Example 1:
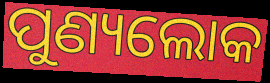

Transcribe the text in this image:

ପୁଣ୍ୟଲୋକ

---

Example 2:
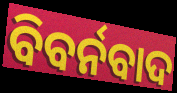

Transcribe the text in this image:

ବିବର୍ନବାଦ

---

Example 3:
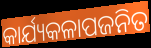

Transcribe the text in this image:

କାର୍ଯ୍ୟକଳାପଜନିତ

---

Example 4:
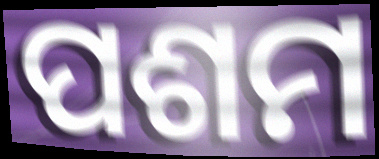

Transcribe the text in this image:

ପଶମ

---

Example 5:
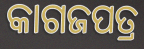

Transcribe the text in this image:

କାଗଜପତ୍ର